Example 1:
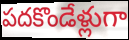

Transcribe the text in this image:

పదకొండేళ్లుగా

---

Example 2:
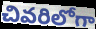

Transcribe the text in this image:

చివరిలోగా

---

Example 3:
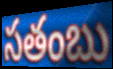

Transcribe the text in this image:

సతంబు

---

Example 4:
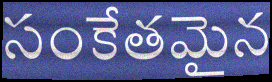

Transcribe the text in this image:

సంకేతమైన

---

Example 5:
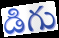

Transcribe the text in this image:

డిగు